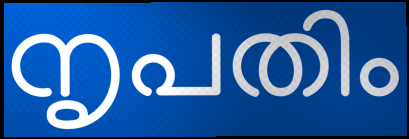
നൃപതിം